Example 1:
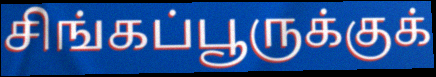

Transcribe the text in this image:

சிங்கப்பூருக்குக்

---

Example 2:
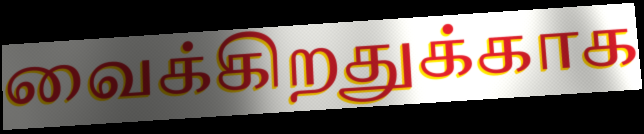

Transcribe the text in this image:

வைக்கிறதுக்காக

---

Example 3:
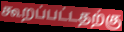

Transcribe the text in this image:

கூறப்பட்டதற்கு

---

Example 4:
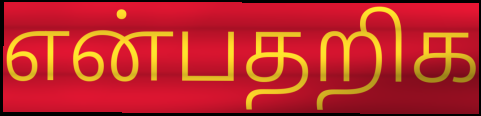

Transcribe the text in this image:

என்பதறிக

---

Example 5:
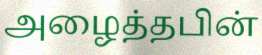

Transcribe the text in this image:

அழைத்தபின்